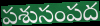
పశుసంపద